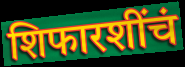
शिफारशींचं